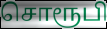
சொரூபி